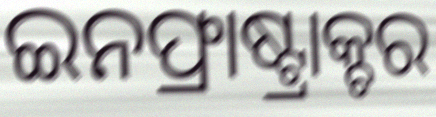
ଇନଫ୍ରାଷ୍ଟ୍ରାକ୍ଚର